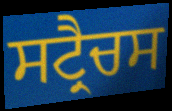
ਸਟ੍ਰੈਚਸ